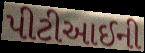
પીટીઆઈની